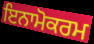
ਇਨਾਮੋਕਰਮ